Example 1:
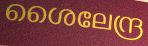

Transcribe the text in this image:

ശൈലേന്ദ്ര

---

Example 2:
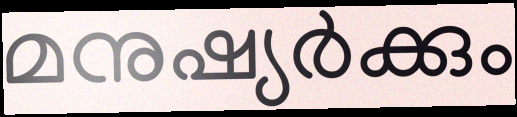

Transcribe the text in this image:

മനുഷ്യർക്കും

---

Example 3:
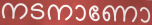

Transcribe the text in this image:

നടനാണോ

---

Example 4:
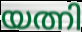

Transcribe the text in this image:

യത്നി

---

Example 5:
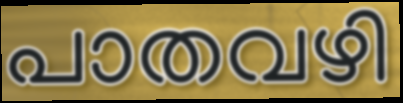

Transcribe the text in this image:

പാതവഴി